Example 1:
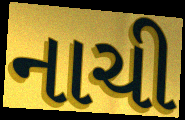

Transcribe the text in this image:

નાચી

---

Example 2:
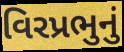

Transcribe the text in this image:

વિરપ્રભુનું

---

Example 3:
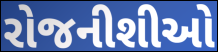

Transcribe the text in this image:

રોજનીશીઓ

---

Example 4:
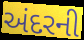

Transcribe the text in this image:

અંદરની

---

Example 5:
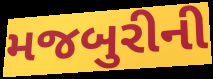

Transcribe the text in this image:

મજબુરીની